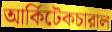
আর্কিটেকচারাল